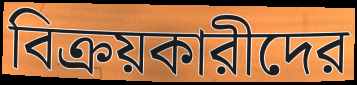
বিক্রয়কারীদের